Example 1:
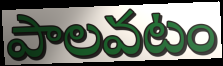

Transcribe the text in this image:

పాలవటం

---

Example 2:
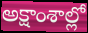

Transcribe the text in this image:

అక్షాంశాల్లో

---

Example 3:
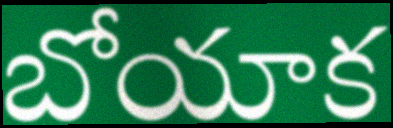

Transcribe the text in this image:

బోయాక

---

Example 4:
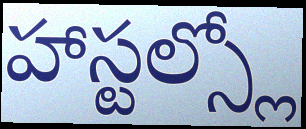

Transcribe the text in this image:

హాస్టల్స్లో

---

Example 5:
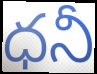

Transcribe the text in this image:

ధనీ